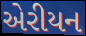
એરીયન